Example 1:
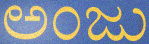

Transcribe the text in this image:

ಅಂಜು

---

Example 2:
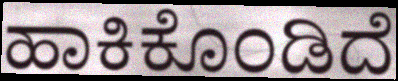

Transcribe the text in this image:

ಹಾಕಿಕೊಂಡಿದೆ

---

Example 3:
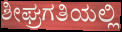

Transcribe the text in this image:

ಶೀಘ್ರಗತಿಯಲ್ಲಿ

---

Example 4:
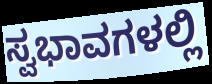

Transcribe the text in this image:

ಸ್ವಭಾವಗಳಲ್ಲಿ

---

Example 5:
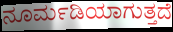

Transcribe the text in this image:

ನೂರ್ಮಡಿಯಾಗುತ್ತದೆ